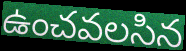
ఉంచవలసిన